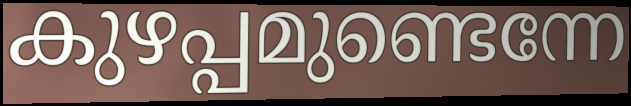
കുഴപ്പമുണ്ടെന്നേ